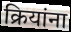
क्रियांना